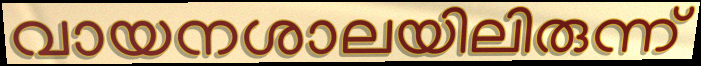
വായനശാലയിലിരുന്ന്